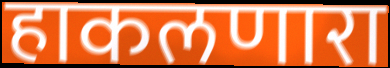
हाकलणारा